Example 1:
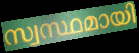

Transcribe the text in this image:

സ്വസ്ഥമായി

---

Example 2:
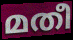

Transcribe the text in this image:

മതീ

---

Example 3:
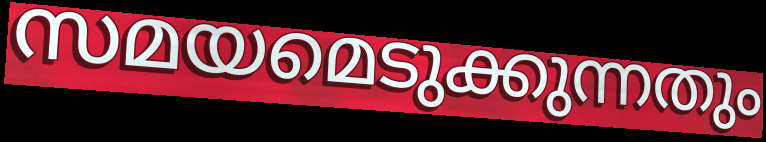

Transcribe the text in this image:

സമയമെടുക്കുന്നതും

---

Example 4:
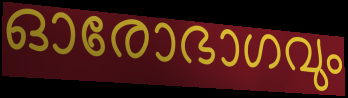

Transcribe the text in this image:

ഓരോഭാഗവും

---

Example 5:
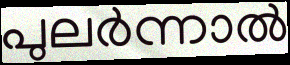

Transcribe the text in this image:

പുലർന്നാൽ